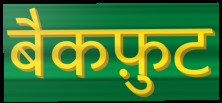
बैकफ़ुट